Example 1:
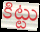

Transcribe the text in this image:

కిట్టు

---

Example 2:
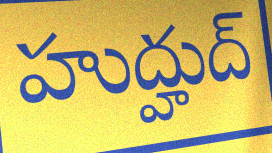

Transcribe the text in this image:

హుద్హుద్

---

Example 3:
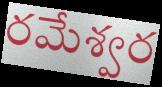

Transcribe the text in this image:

రమేశ్వర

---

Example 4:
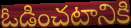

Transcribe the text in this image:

ఓడించటానికి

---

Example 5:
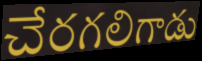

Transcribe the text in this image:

చేరగలిగాడు